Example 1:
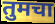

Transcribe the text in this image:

तुमचा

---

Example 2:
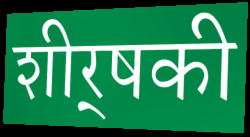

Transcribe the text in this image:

शीर्षकी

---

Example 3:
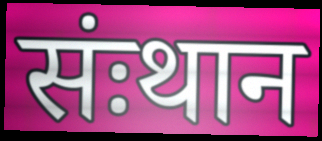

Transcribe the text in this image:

संःथान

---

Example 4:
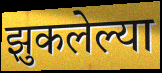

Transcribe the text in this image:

झुकलेल्या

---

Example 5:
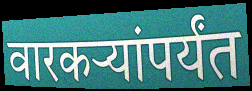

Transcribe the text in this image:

वारकऱ्यांपर्यंत